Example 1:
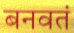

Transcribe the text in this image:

बनवतं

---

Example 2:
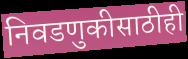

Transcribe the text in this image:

निवडणुकीसाठीही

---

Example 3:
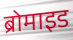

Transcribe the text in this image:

ब्रोमाइड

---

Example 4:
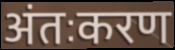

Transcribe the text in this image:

अंतःकरण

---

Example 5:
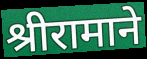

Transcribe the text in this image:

श्रीरामाने